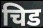
चिड